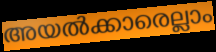
അയൽക്കാരെല്ലാം